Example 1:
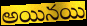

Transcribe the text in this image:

అయినయి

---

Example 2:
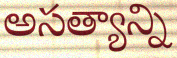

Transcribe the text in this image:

అసత్యాన్ని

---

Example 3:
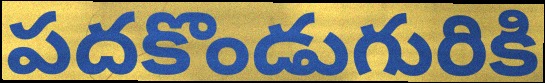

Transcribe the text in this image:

పదకొండుగురికి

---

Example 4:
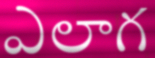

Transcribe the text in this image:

ఎలాగ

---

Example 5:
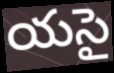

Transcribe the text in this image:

యసై